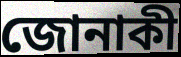
জোনাকী